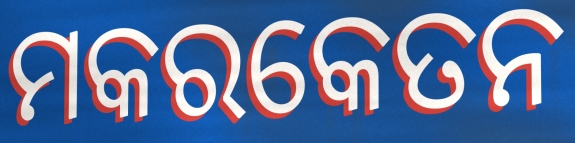
ମକରକେତନ